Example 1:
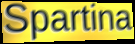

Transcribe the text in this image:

Spartina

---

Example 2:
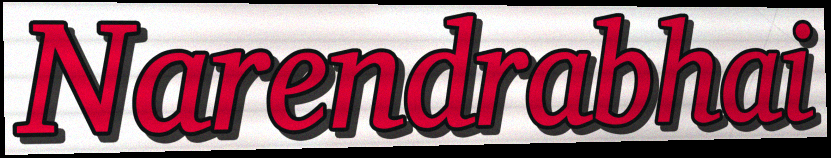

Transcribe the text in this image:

Narendrabhai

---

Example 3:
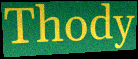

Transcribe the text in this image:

Thody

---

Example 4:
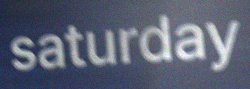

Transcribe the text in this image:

saturday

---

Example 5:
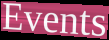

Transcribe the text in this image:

Events